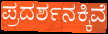
ಪ್ರದರ್ಶನಕ್ಕಿವೆ